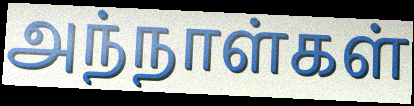
அந்நாள்கள்